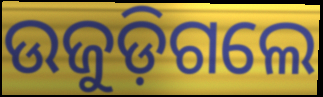
ଉଜୁଡ଼ିଗଲେ